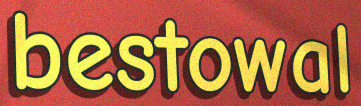
bestowal